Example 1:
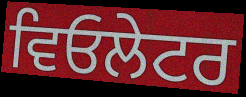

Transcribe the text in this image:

ਵਿਓਲੇਟਰ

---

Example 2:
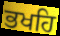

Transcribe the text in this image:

ਭਖਹਿ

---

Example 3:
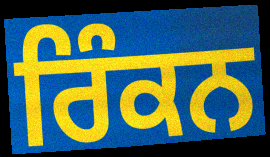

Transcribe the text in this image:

ਰਿੰਕਨ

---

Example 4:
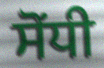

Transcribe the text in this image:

ਸੋਂਧੀ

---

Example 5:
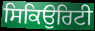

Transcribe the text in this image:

ਸਿਕਿਉਰਿਟੀ